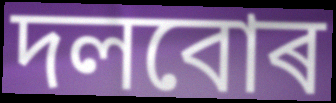
দলবোৰ